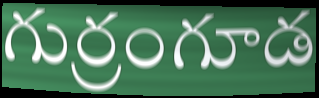
గుర్రంగూడ